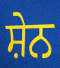
ਸ਼ੇਨ